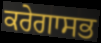
ਕਰੇਗਾਸਭ